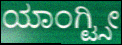
ಯಾಂಗ್ಟ್ಸೀ